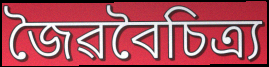
জৈৱবৈচিত্ৰ্য